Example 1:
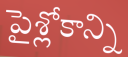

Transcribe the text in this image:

పైశ్లోకాన్ని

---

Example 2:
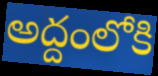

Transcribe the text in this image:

అద్దంలోకి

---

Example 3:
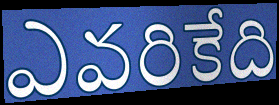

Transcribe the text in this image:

ఎవరికేది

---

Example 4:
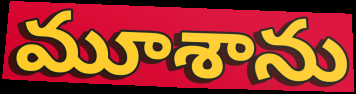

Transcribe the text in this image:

మూశాను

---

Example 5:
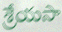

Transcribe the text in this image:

శ్రేయసా